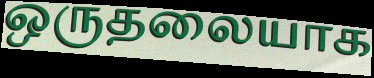
ஒருதலையாக